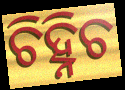
ଚିହ୍ନିଚ